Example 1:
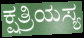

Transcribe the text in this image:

ಕ್ಷತ್ರಿಯಸ್ಯ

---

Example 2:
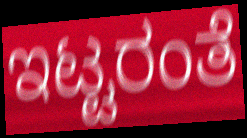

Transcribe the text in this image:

ಇಟ್ಟರಂತೆ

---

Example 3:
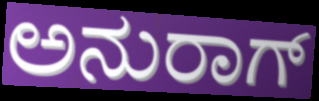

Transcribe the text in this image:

ಅನುರಾಗ್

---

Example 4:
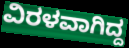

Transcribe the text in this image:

ವಿರಳವಾಗಿದ್ದ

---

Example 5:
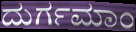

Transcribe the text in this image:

ದುರ್ಗಮಾಂ